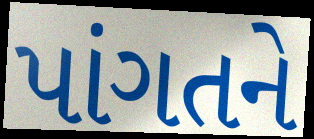
પાંગતને